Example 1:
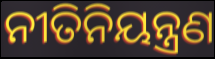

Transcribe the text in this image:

ନୀତିନିୟନ୍ତ୍ରଣ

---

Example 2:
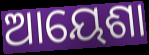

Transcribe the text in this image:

ଆୟେଶା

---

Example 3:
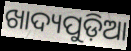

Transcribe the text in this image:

ଖାଦ୍ୟପୁଡ଼ିଆ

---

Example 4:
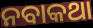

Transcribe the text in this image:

ନବାକଥା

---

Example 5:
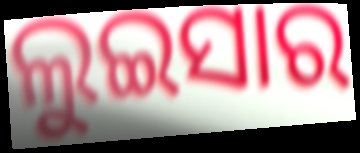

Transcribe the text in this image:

ଲୁଇସାର